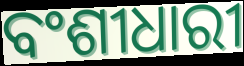
ବଂଶୀଧାରୀ